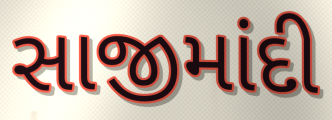
સાજીમાંદી